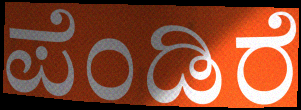
ಪೆಂಡಿರೆ